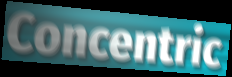
Concentric